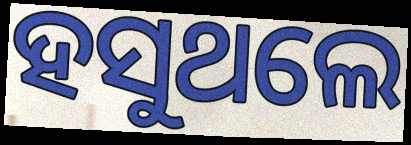
ହସୁଥଲେ